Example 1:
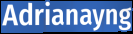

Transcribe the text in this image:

Adrianayng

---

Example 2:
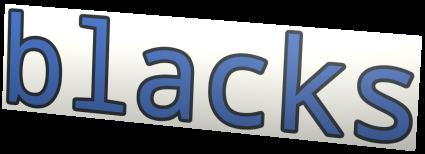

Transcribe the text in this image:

blacks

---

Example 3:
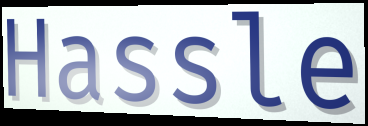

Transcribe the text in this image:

Hassle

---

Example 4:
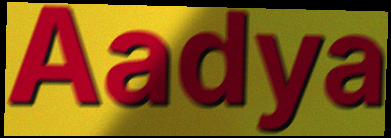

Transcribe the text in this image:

Aadya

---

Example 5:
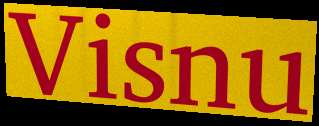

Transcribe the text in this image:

Visnu